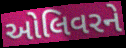
ઓલિવરને